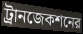
ট্রানজেকশনের